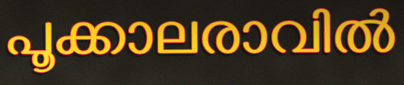
പൂക്കാലരാവിൽ